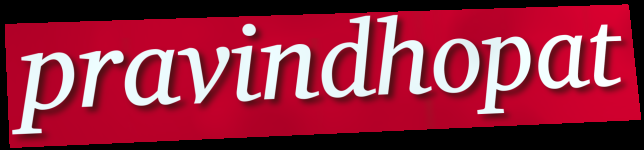
pravindhopat